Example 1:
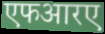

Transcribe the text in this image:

एफआरए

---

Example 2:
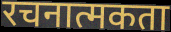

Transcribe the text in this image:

रचनात्मकता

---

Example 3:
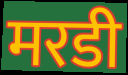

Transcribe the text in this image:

मरडी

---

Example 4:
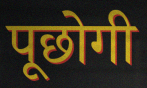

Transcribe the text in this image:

पूछोगी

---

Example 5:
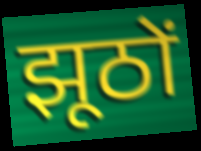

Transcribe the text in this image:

झूठों